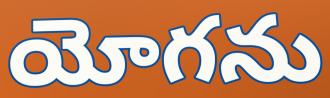
యోగను